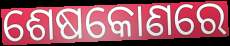
ଶେଷକୋଣରେ